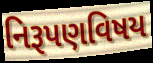
નિરૂપણવિષય